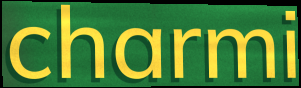
charmi